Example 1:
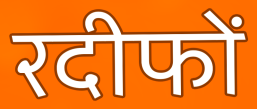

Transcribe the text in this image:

रदीफों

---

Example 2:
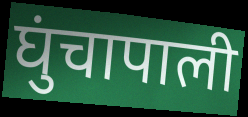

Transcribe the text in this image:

घुंचापाली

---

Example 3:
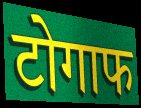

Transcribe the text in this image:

टोगाफ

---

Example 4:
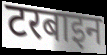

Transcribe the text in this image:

टरबाइन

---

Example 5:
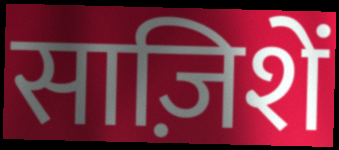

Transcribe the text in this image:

साज़िशें